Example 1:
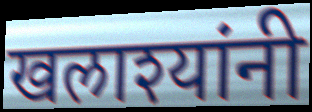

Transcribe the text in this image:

खलाश्यांनी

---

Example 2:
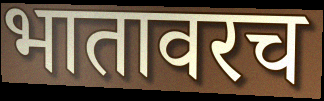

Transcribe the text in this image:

भातावरच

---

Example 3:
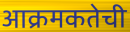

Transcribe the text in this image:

आक्रमकतेची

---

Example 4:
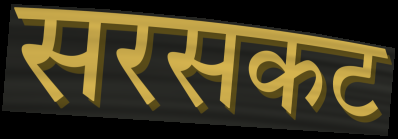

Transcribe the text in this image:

सरसकट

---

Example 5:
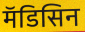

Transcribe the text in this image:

मॅडिसिन